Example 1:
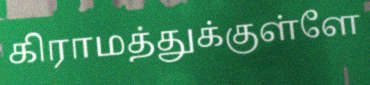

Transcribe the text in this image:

கிராமத்துக்குள்ளே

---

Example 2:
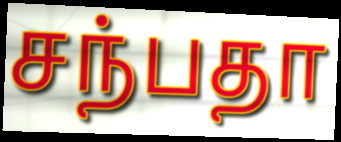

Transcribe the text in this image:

சந்பதா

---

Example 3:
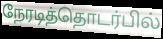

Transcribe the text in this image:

நேரடித்தொடர்பில்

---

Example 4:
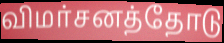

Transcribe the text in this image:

விமர்சனத்தோடு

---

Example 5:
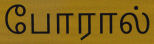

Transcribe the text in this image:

போரால்